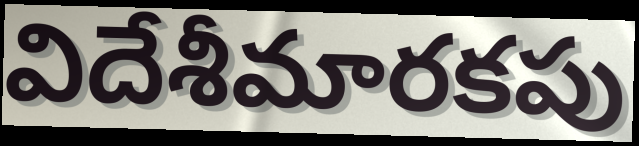
విదేశీమారకపు